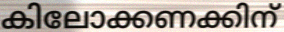
കിലോക്കണക്കിന്